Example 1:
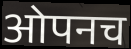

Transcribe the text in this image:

ओपनच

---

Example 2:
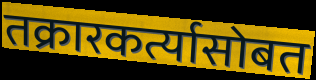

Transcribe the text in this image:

तक्रारकर्त्यासोबत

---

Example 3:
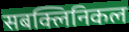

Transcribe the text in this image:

सबक्लिनिकल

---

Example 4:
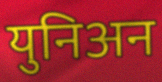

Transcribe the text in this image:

युनिअन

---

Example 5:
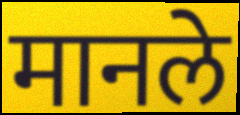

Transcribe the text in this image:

मानले